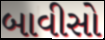
બાવીસો